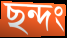
ছন্দং